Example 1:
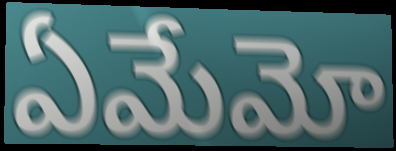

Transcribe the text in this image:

ఏమేమో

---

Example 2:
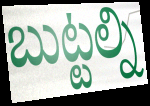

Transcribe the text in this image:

బుట్టల్ని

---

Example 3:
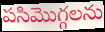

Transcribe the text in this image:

పసిమొగ్గలను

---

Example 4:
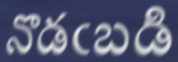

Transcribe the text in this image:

నొడఁబడి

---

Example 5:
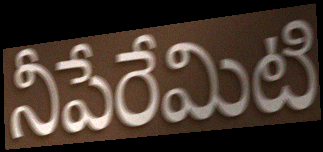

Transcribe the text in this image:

నీపేరేమిటి